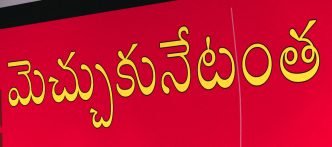
మెచ్చుకునేటంత